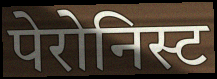
पेरोनिस्ट